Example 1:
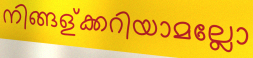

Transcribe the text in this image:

നിങ്ങള്ക്കറിയാമല്ലോ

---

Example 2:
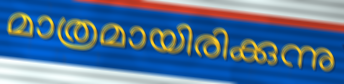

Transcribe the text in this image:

മാത്രമായിരിക്കുന്നു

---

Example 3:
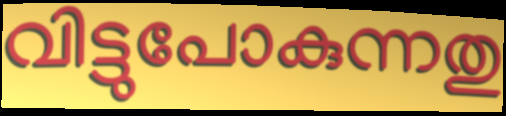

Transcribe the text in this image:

വിട്ടുപോകുന്നതു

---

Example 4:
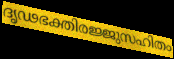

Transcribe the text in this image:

ദൃഢഭക്തിരജ്ജുസഹിതം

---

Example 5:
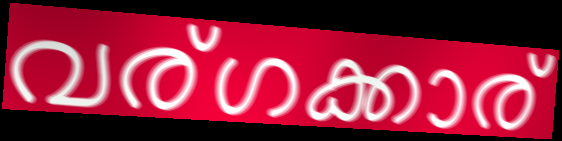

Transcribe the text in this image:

വര്ഗക്കാര്